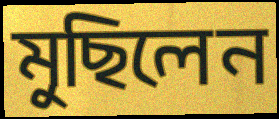
মুছিলেন